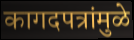
कागदपत्रांमुळे